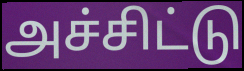
அச்சிட்டு